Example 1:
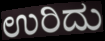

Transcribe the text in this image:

ಉರಿದು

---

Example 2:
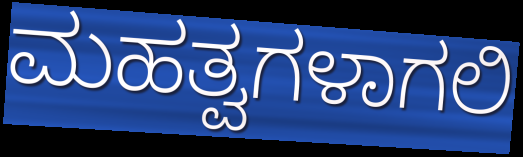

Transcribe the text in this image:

ಮಹತ್ವಗಳಾಗಲಿ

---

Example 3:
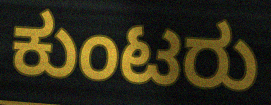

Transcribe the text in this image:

ಕುಂಟರು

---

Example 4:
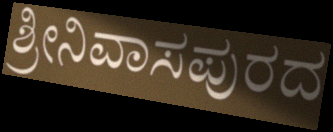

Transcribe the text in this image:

ಶ್ರೀನಿವಾಸಪುರದ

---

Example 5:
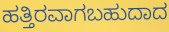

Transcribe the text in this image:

ಹತ್ತಿರವಾಗಬಹುದಾದ